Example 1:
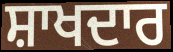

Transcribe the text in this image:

ਸ਼ਾਖਦਾਰ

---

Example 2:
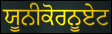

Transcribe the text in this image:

ਯੂਨੀਕੋਰਨੂਏਟ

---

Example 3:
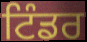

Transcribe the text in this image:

ਟਿੰਡਰ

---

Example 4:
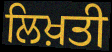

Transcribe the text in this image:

ਲਿਖ਼ਤੀ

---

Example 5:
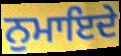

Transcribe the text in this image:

ਨੁਮਾਇਦੇ